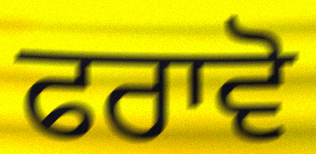
ਫਰਾਵੋ